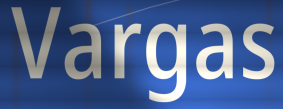
Vargas